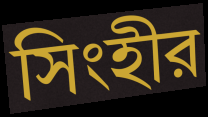
সিংহীর